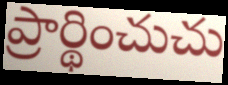
ప్రార్థించుచు